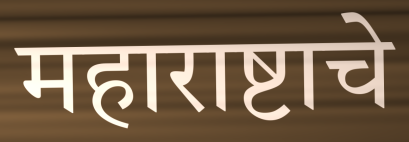
महाराष्टाचे